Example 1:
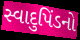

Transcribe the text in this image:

સ્વાદુપિંડનો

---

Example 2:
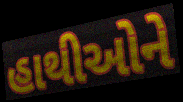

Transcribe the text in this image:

હાથીઓને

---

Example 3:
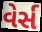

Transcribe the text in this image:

વેર્સ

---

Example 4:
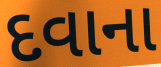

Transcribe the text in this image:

દવાના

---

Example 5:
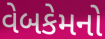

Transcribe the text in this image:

વેબકેમનો